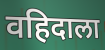
वहिदाला